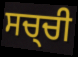
ਸਚ੍ਚੀ